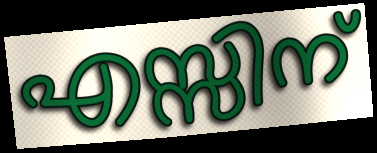
എസ്സിന്